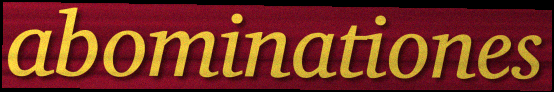
abominationes